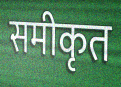
समीकृत